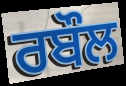
ਰਬੌਲ